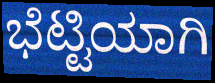
ಭೆಟ್ಟಿಯಾಗಿ